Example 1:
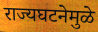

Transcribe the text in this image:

राज्यघटनेमुळे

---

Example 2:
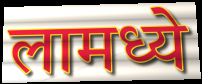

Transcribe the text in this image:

लामध्ये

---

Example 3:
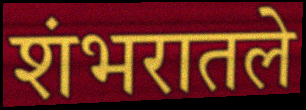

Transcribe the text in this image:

शंभरातले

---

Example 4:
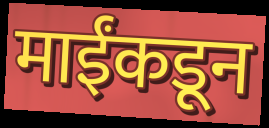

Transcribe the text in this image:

माईंकडून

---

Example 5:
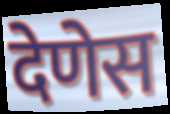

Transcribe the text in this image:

देणेस